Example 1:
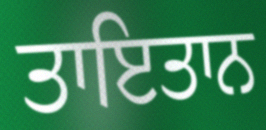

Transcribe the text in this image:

ਤਾਇਤਾਨ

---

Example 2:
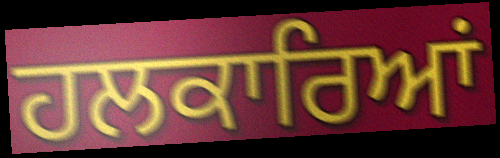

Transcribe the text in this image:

ਹਲਕਾਰਿਆਂ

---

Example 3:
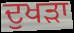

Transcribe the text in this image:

ਦੁਖੜਾ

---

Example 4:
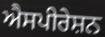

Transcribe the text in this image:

ਐਸਪੀਰੇਸ਼ਨ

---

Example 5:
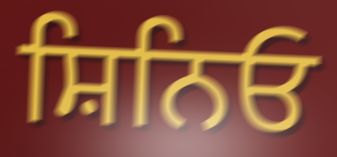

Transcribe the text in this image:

ਸ਼ਿਨਿਓ